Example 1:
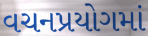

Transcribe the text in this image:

વચનપ્રયોગમાં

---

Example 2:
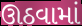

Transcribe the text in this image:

ઊઠવામાં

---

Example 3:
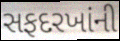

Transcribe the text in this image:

સફદરખાંની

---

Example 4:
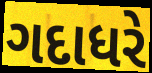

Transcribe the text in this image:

ગદાધરે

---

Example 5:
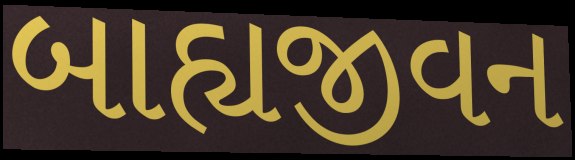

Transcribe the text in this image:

બાહ્યજીવન